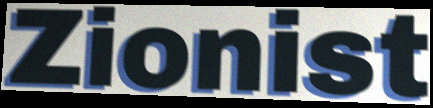
Zionist